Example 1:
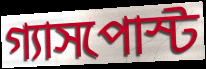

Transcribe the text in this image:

গ্যাসপোস্ট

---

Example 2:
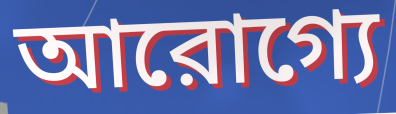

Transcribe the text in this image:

আরোগ্যে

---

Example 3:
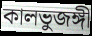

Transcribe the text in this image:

কালভুজঙ্গী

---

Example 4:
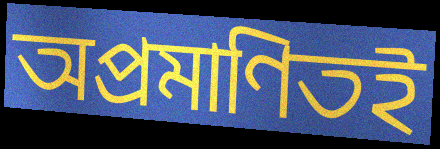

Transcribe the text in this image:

অপ্রমাণিতই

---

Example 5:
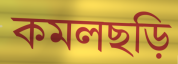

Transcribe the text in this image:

কমলছড়ি